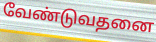
வேண்டுவதனை